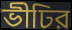
ভীঢির